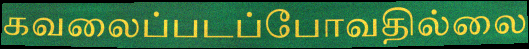
கவலைப்படப்போவதில்லை